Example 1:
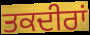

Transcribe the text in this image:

ਤਕਦੀਰਾਂ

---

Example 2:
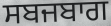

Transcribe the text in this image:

ਸਬਜਬਾਗ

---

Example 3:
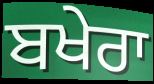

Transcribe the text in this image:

ਬਖੇਰਾ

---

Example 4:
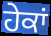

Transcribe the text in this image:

ਹੇਕਾਂ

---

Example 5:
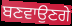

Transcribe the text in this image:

ਬਣਵਾਉਣਗੇ